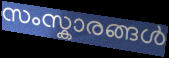
സംസ്കാരങ്ങൾ